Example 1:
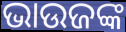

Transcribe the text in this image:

ଭାଉଜଙ୍କ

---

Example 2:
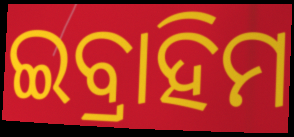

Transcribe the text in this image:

ଇବ୍ରାହିମ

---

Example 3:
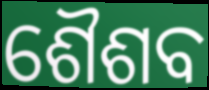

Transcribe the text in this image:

ଶୈଶବ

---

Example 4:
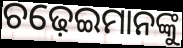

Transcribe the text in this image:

ଚଢ଼େଇମାନଙ୍କୁ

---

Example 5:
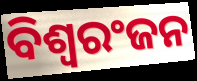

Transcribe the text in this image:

ବିଶ୍ୱରଂଜନ